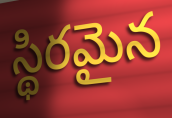
స్థిరమైన